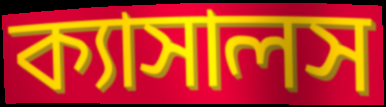
ক্যাসালস